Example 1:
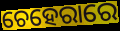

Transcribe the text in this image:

ଚେହେରାରେ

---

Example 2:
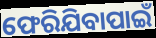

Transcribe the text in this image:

ଫେରିଯିବାପାଇଁ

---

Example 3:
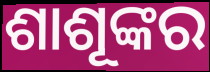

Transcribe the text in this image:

ଶାଶୂଙ୍କର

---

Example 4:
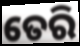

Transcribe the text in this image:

ତେରି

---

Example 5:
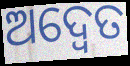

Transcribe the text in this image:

ଅଦ୍ଵେତ